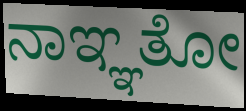
ನಾಞ್ಞತೋ